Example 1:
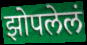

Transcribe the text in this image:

झोपलेलं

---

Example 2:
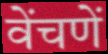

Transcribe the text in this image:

वेंचणें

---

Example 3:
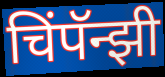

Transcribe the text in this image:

चिंपॅन्झी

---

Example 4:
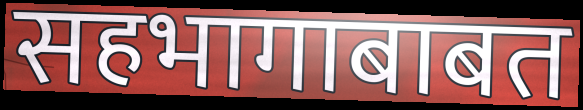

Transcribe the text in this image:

सहभागाबाबत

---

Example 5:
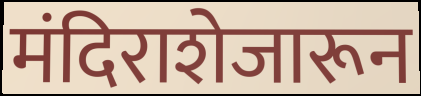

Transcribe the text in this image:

मंदिराशेजारून